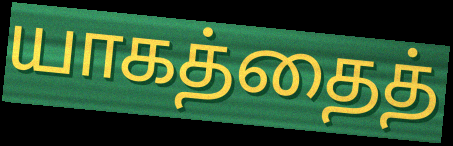
யாகத்தைத்